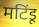
मटिंडू